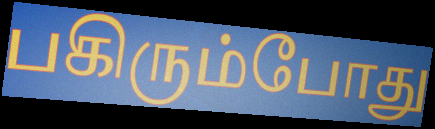
பகிரும்போது